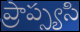
ప్రాప్స్యసి